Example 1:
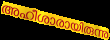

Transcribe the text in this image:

അഹീശാരായിരുന്നു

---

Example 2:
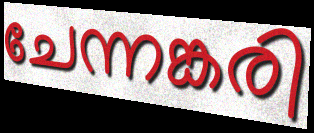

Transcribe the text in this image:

ചേന്നങ്കരി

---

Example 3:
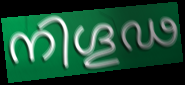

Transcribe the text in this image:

നിഗൂഢ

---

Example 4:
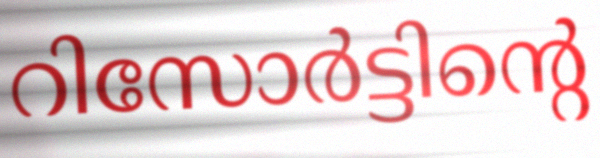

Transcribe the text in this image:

റിസോർട്ടിന്റെ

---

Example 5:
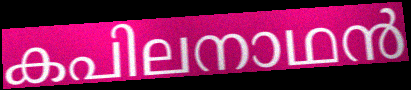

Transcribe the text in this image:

കപിലനാഥൻ